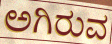
ಅಗಿರುವ